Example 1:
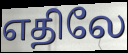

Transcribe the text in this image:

எதிலே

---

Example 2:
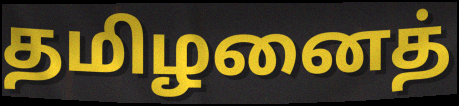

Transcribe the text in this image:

தமிழனைத்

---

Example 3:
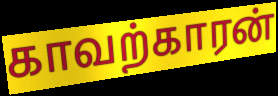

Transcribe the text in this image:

காவற்காரன்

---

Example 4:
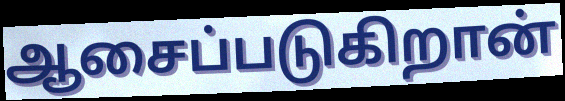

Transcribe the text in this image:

ஆசைப்படுகிறான்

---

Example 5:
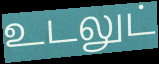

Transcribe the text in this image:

உடலுட்